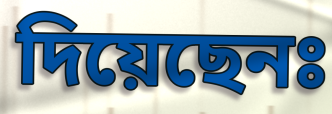
দিয়েছেনঃ